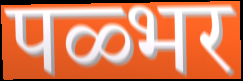
पळ्भर